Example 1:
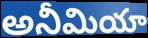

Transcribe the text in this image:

అనీమియా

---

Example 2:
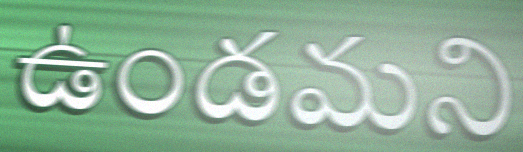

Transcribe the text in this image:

ఉండమని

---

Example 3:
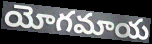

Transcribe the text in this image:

యోగమాయ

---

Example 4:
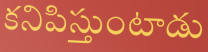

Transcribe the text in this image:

కనిపిస్తుంటాడు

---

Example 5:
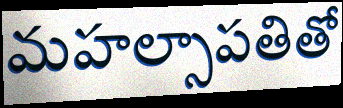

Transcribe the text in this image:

మహల్సాపతితో